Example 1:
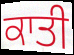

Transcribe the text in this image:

ਕਾਤੀ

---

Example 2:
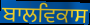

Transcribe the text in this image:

ਬਾਲਵਿਕਾਸ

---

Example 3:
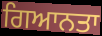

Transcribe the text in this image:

ਗਿਆਨਤਾ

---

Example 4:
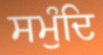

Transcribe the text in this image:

ਸਮੁੰਦਿ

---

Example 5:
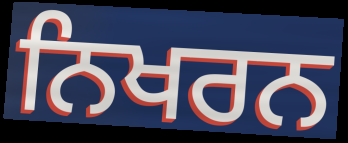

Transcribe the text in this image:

ਨਿਖਰਨ